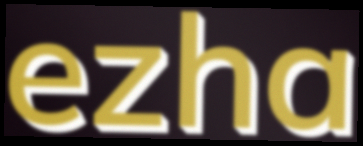
ezha